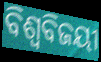
ବିଶ୍ବବିଜୟୀ